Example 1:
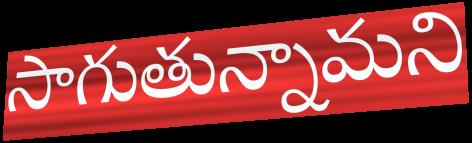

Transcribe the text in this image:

సాగుతున్నామని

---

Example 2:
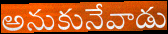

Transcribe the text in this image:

అనుకునేవాడు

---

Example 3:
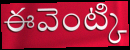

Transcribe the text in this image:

ఈవెంట్కి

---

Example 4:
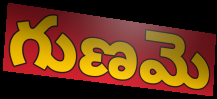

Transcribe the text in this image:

గుణమె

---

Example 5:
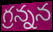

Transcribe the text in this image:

గ్రన్నన